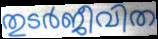
തുടർജീവിത